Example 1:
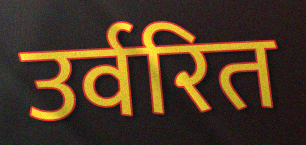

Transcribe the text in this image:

उर्वरित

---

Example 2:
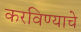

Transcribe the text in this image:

करविण्याचे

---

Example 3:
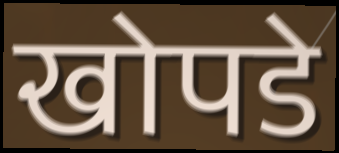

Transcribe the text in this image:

खोपडे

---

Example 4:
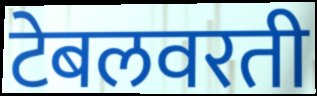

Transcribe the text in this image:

टेबलवरती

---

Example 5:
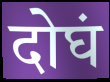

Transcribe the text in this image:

दोघं